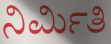
ನಿರ್ಮಿತಿ